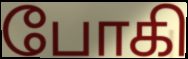
போகி